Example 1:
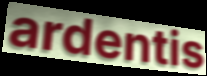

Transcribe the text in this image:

ardentis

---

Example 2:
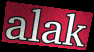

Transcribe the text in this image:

alak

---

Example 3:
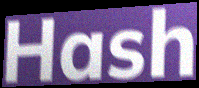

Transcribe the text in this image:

Hash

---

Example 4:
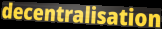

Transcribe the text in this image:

decentralisation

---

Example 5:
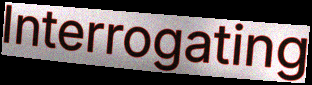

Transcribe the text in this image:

Interrogating